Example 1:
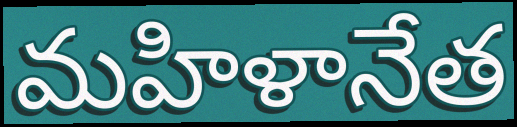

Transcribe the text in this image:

మహిళానేత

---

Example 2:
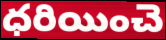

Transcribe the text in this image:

ధరియించె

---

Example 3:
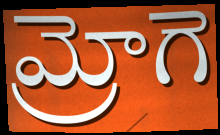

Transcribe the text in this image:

మ్రోగె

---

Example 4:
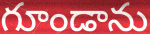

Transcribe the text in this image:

గూండాను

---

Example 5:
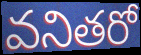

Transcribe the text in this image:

వనితరో